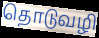
தொடுவழி